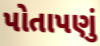
પોતાપણું